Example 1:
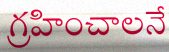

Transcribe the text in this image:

గ్రహించాలనే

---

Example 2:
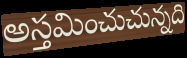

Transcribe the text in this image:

అస్తమించుచున్నది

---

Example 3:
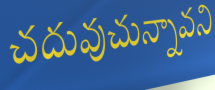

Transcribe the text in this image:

చదువుచున్నావని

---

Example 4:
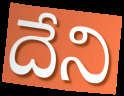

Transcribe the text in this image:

దేని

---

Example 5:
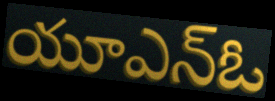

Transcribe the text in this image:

యూఎన్ఓ